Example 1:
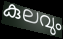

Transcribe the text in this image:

കുലവും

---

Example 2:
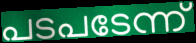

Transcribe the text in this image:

പടപടേന്ന്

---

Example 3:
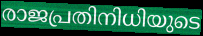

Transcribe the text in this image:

രാജപ്രതിനിധിയുടെ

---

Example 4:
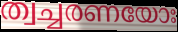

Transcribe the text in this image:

ത്വച്ചരണയോഃ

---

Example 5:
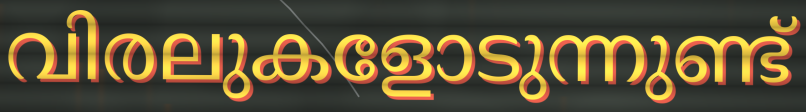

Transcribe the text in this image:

വിരലുകളോടുന്നുണ്ട്